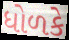
ધોળકે